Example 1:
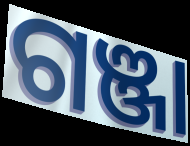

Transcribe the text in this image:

ଗଞ୍ଜା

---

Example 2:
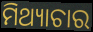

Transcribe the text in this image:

ମିଥ୍ୟାଚାର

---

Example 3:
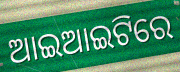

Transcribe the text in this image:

ଆଇଆଇଟିରେ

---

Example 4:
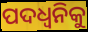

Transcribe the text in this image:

ପଦଧ୍ୱନିକୁ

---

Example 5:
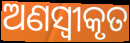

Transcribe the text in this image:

ଅଣସ୍ୱୀକୃତ